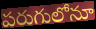
పరుగులోనూ